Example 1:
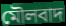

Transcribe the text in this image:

মৌলবাদ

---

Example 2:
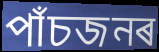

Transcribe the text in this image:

পাঁচজনৰ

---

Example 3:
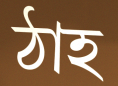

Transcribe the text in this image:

ঠাহ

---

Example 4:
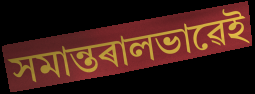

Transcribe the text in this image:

সমান্তৰালভাৱেই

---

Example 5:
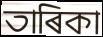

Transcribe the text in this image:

তাৰিকা